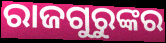
ରାଜଗୁରୁଙ୍କର